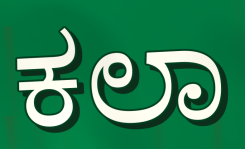
ಕಲಾ